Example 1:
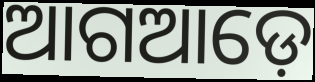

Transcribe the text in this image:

ଆଗଆଡ଼େ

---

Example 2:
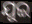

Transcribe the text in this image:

ଯୁଇ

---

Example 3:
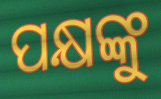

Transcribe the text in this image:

ପକ୍ଷଙ୍କୁ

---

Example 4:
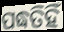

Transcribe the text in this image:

ପଦ୍ଧତିହିଁ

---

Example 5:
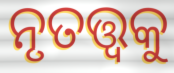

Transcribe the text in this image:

ନୃତତ୍ତ୍ଵକୁ